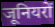
जूनियरों